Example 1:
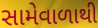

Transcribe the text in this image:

સામેવાળાથી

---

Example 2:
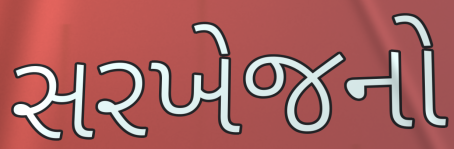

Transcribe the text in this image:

સરખેજનો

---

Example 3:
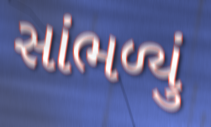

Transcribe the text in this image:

સાંભળ્યું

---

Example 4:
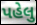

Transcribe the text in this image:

પહેલુ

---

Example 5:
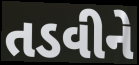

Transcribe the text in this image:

તડવીને